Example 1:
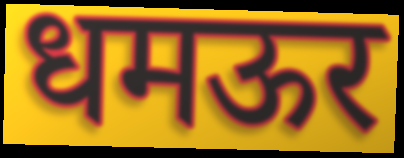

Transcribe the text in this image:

धमऊर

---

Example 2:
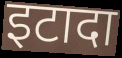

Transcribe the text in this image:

इटादा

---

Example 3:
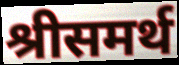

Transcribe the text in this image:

श्रीसमर्थ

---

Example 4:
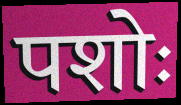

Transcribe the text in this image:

पशोः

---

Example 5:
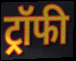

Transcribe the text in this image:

ट्रॉफी